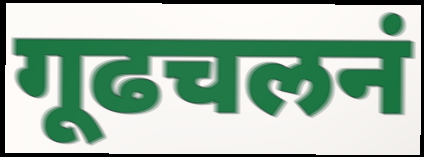
गूढचलनं